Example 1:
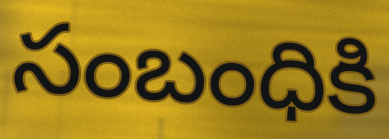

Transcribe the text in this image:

సంబంధికి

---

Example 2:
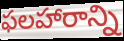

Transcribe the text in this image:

ఫలహారాన్ని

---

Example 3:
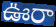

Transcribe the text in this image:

ఊరా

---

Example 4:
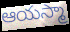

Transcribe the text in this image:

ఆయస్మా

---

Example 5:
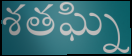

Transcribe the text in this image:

శతఘ్ని